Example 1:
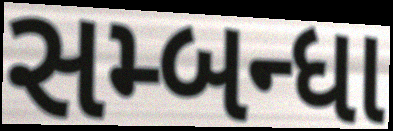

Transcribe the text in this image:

સમ્બન્ધા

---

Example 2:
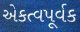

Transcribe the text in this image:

એકત્વપૂર્વક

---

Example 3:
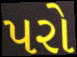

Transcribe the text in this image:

પરો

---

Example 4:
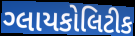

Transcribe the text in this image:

ગ્લાયકોલિટીક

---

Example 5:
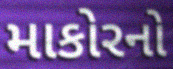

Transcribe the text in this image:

માકોરનો